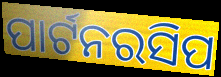
ପାର୍ଟନରସିପ